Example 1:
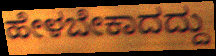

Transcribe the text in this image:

ಹೇಳಬೇಕಾದದ್ದು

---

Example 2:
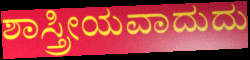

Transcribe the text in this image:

ಶಾಸ್ತ್ರೀಯವಾದುದು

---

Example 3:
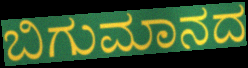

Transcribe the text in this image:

ಬಿಗುಮಾನದ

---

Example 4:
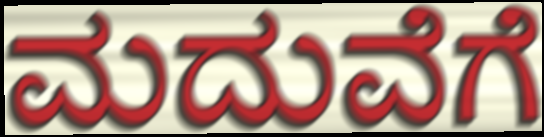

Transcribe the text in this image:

ಮದುವೆಗೆ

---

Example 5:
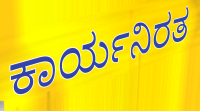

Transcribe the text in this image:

ಕಾರ್ಯನಿರತ